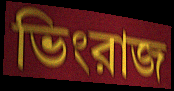
ভিংরাজ